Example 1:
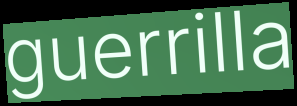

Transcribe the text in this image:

guerrilla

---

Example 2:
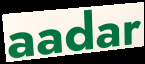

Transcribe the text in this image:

aadar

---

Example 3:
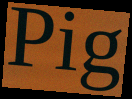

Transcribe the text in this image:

Pig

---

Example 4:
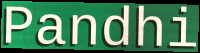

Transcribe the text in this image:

Pandhi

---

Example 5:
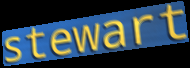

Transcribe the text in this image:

stewart